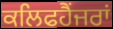
ਕਲਿਫਹੈਂਜਰਾਂ